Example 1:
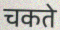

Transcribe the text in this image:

चकते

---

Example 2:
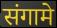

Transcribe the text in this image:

संगामे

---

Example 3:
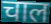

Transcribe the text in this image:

चाल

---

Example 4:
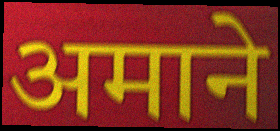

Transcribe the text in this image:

अमाने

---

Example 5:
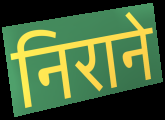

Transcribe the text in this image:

निराने